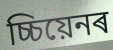
চ্চিয়েনৰ